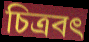
চিত্রবৎ